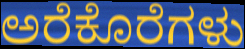
ಅರೆಕೊರೆಗಳು